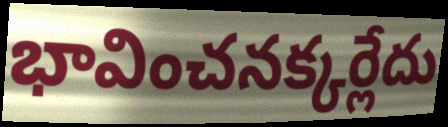
భావించనక్కర్లేదు